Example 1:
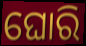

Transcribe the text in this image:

ଘୋରି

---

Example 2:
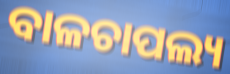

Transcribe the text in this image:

ବାଳଚାପଲ୍ୟ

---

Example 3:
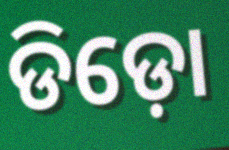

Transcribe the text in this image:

ଡିଡ଼ୋ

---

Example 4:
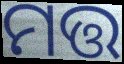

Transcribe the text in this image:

ମତ୍ତ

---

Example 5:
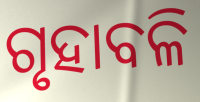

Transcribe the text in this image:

ଗୃହାବଳି